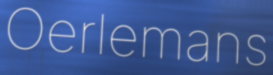
Oerlemans